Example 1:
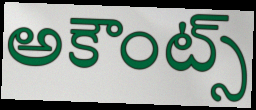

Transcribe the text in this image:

అకౌంట్స్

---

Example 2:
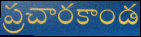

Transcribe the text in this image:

ప్రచారకాండ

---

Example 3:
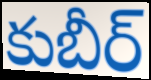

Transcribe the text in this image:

కుబీర్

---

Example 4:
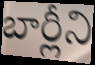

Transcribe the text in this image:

బార్లీని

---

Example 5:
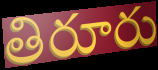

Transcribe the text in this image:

తిరూరు